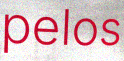
pelos